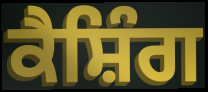
ਕੈਸ਼ਿੰਗ